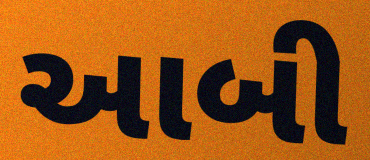
આબી